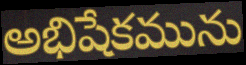
అభిషేకమును